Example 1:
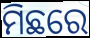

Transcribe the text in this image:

ମିଛରେ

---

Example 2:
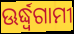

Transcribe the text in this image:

ଊର୍ଦ୍ଧ୍ଵଗାମୀ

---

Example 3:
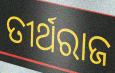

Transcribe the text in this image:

ତୀର୍ଥରାଜ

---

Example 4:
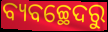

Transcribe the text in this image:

ବ୍ୟବଚ୍ଛେଦରୁ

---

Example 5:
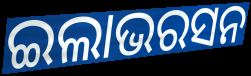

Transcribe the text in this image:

ଇଲାଭରସନ